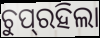
ଚୁପ୍‌ରହିଲା